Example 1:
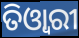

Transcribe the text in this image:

ତିଓ୍ଵାରୀ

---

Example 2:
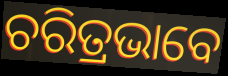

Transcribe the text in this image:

ଚରିତ୍ରଭାବେ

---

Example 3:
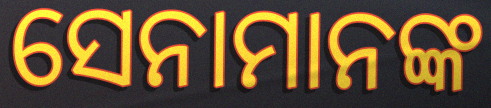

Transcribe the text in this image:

ସେନାମାନଙ୍କ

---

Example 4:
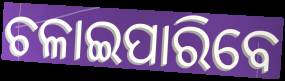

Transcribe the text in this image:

ଚଳାଇପାରିବେ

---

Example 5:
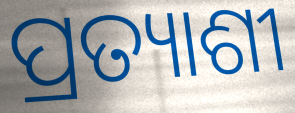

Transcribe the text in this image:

ପ୍ରତ୍ୟାଶୀ